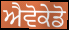
ਐਵੋਕੇਡੋ